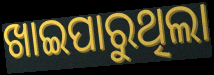
ଖାଇପାରୁଥିଲା